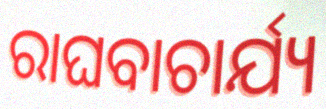
ରାଘବାଚାର୍ଯ୍ୟ